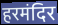
हरमंदिर